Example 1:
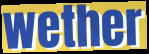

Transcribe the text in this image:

wether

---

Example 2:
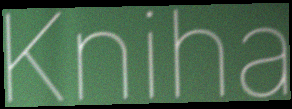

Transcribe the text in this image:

Kniha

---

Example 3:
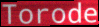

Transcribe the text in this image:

Torode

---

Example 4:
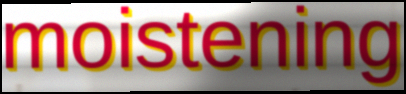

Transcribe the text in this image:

moistening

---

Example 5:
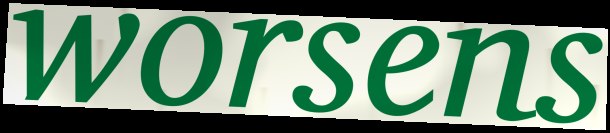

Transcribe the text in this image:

worsens